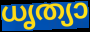
ധൃത്യാ